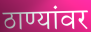
ठाण्यांवर